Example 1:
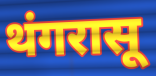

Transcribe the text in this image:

थंगरासू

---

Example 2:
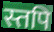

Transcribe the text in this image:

स्‍तपि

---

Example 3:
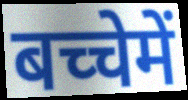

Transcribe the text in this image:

बच्चेमें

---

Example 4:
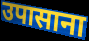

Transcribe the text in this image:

उपासाना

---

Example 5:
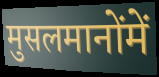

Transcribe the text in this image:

मुसलमानोंमें